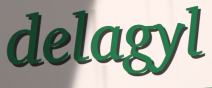
delagyl